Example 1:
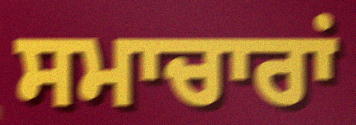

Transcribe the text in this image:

ਸਮਾਚਾਰਾਂ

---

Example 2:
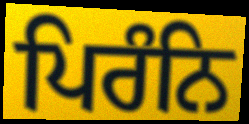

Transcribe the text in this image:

ਪਿਰੰਨਿ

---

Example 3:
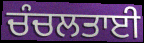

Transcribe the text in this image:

ਚੰਚਲਤਾਈ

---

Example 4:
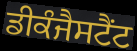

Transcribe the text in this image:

ਡੀਕੰਜੈਸਟੈਂਟ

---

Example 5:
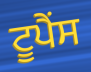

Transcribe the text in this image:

ਟੂਪੈਂਸ